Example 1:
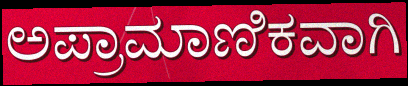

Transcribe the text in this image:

ಅಪ್ರಾಮಾಣಿಕವಾಗಿ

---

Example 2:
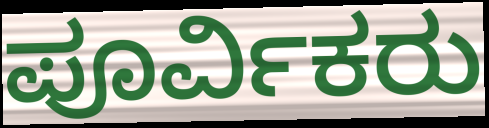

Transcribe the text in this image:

ಪೂರ್ವಿಕರು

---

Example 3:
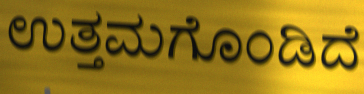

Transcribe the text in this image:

ಉತ್ತಮಗೊಂಡಿದೆ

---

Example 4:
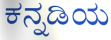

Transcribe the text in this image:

ಕನ್ನಡಿಯ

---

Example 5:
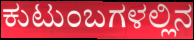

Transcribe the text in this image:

ಕುಟುಂಬಗಳಲ್ಲಿನ